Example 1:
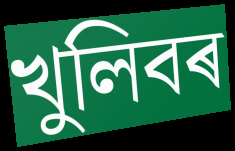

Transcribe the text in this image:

খুলিবৰ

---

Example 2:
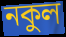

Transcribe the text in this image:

নকুল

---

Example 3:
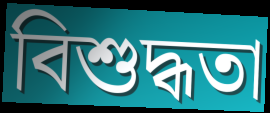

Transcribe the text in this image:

বিশুদ্ধতা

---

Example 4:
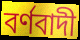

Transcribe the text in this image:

বৰ্ণবাদী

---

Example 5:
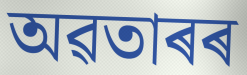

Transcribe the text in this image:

অৱতাৰৰ